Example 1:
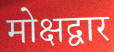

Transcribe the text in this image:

मोक्षद्वार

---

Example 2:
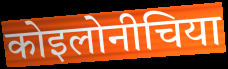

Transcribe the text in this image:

कोइलोनीचिया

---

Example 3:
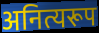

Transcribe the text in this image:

अनित्यरूप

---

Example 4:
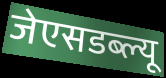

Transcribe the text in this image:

जेएसडब्ल्यू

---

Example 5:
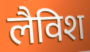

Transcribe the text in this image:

लैविश